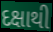
દક્ષાથી